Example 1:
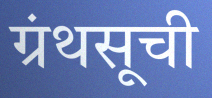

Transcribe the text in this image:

ग्रंथसूची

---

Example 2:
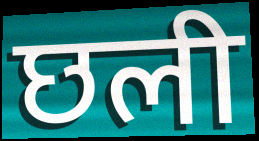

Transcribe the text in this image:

छली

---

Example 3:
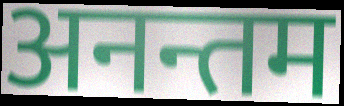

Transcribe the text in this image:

अनन्तम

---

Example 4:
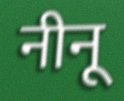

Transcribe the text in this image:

नीनू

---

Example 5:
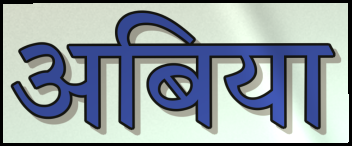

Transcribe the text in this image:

अबिया